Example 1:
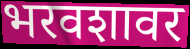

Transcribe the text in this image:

भरवशावर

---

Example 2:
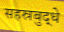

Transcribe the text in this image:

सहस्रबुद्धे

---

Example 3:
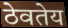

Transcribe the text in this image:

ठेवतेय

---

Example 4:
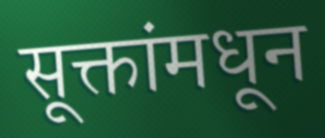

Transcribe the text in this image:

सूक्तांमधून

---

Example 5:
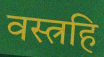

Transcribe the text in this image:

वस्त्रहि